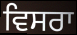
ਵਿਸਰਾ